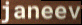
janeev